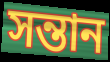
সন্তান